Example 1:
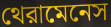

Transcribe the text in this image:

থেরামেনেস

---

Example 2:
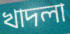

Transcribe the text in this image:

খাদলা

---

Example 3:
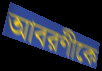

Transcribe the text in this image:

আবরণীকে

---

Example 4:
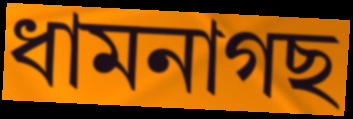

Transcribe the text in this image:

ধামনাগছ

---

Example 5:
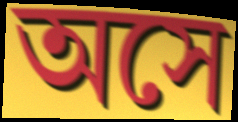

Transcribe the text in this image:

অসে